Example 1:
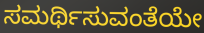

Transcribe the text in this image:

ಸಮರ್ಥಿಸುವಂತೆಯೇ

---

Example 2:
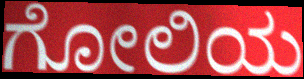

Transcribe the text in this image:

ಗೋಲಿಯ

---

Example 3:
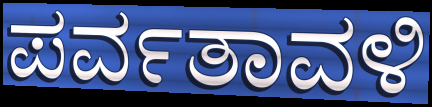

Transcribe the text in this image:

ಪರ್ವತಾವಳಿ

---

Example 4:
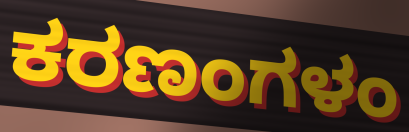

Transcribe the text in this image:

ಕರಣಂಗಳಂ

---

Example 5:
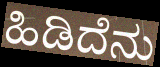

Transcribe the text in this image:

ಹಿಡಿದೆನು